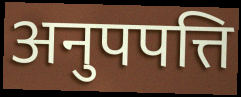
अनुपपत्ति